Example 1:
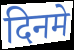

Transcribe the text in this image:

दिनमे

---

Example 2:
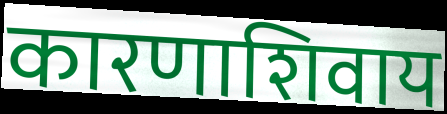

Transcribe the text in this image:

कारणाशिवाय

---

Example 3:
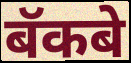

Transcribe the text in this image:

बॅकबे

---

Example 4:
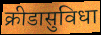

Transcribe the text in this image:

क्रीडासुविधा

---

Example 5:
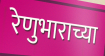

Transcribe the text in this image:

रेणुभाराच्या